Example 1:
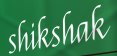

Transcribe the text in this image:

shikshak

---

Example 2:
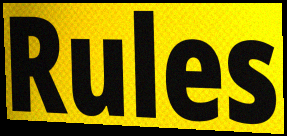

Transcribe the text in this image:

Rules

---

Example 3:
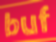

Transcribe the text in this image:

buf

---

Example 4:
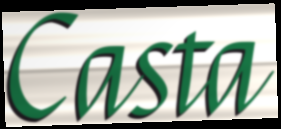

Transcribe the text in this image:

Casta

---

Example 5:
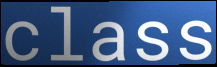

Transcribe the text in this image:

class